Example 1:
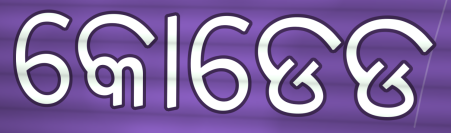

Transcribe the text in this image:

କୋଡେଡ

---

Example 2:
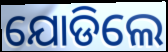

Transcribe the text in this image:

ଯୋଡିଲେ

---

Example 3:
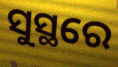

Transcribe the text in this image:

ସୁସ୍ଥରେ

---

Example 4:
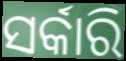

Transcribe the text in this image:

ସର୍କାରି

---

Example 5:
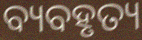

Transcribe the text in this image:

ବ୍ୟବହୃତ୍ୟ